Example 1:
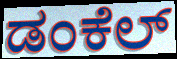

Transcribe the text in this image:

ಡಂಕೆಲ್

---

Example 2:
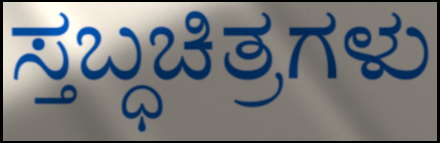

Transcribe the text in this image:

ಸ್ತಬ್ಧಚಿತ್ರಗಳು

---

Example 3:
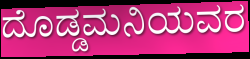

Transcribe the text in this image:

ದೊಡ್ಡಮನಿಯವರ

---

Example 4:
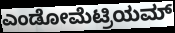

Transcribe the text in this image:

ಎಂಡೋಮೆಟ್ರಿಯಮ್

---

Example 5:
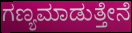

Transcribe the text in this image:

ಗಣ್ಯಮಾಡುತ್ತೇನೆ